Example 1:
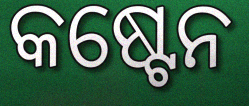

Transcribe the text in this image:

କଷ୍ଟେନ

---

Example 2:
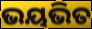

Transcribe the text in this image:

ଭୟଭିତ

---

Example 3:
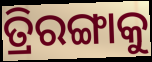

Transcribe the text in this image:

ତ୍ରିରଙ୍ଗାକୁ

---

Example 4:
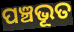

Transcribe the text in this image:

ପଞ୍ଚଭୂତ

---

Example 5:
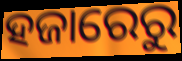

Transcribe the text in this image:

ହଜାରେରୁ